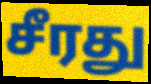
சீரது